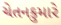
ચેતનકુમારે